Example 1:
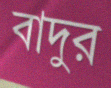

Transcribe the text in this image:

বাদুর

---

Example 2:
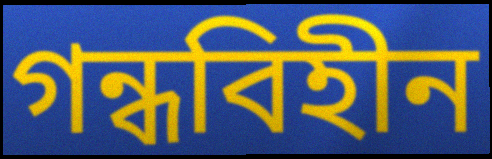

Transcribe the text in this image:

গন্ধবিহীন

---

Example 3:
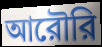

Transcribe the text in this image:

আরৌরি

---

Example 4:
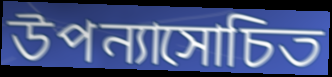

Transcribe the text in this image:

উপন্যাসোচিত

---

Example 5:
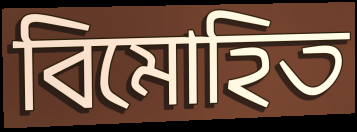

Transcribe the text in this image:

বিমোহিত